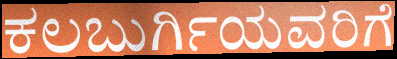
ಕಲಬುರ್ಗಿಯವರಿಗೆ